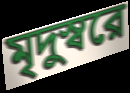
মৃদুস্বরে